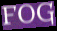
FOG